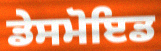
ਡੇਸਮੋਇਡ